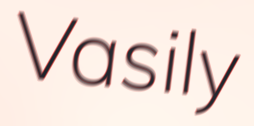
Vasily